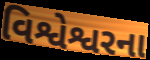
વિશ્વેશ્વરના